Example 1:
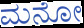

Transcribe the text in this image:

ಮನೋ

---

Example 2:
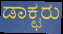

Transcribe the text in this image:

ಡಾಕ್ಟರು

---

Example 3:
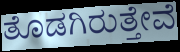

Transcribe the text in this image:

ತೊಡಗಿರುತ್ತೇವೆ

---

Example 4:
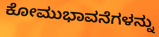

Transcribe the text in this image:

ಕೋಮುಭಾವನೆಗಳನ್ನು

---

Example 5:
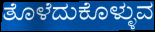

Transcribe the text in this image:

ತೊಳೆದುಕೊಳ್ಳುವ